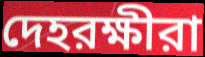
দেহরক্ষীরা